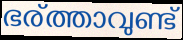
ഭര്ത്താവുണ്ട്